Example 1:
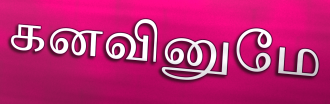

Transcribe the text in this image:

கனவினுமே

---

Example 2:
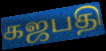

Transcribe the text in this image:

கஜபதி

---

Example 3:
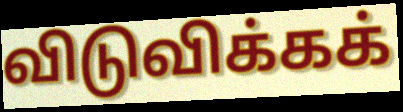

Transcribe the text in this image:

விடுவிக்கக்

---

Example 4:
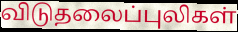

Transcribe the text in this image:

விடுதலைப்புலிகள்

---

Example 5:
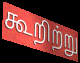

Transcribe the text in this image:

கூறிற்று